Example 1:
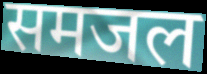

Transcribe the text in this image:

समजल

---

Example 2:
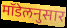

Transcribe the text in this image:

मॉडेलनुसार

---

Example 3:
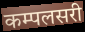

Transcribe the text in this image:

कम्पलसरी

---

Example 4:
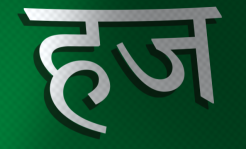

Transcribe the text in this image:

हज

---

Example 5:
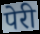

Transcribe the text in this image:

पेरी